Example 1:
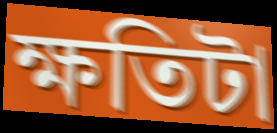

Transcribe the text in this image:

ক্ষতিটা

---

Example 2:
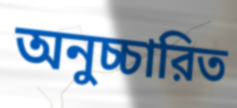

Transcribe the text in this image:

অনুচ্চারিত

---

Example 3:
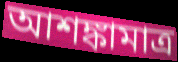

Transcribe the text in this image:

আশঙ্কামাত্র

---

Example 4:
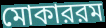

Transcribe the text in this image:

মোকাররম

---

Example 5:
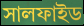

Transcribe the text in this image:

সালফাইড